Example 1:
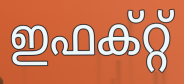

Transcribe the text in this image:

ഇഫക്റ്റ്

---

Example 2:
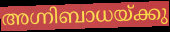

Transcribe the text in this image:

അഗ്നിബാധയ്ക്കു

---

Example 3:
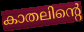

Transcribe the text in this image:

കാതലിന്റെ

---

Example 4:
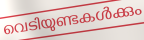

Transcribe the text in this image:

വെടിയുണ്ടകൾക്കും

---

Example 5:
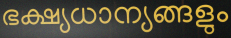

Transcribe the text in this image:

ഭക്ഷ്യധാന്യങ്ങളും